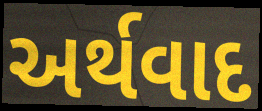
અર્થવાદ